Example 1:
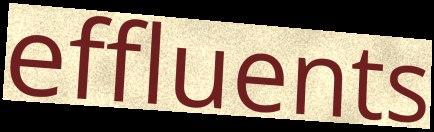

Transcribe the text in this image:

effluents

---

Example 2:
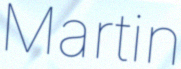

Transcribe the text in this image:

Martin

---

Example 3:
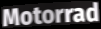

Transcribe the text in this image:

Motorrad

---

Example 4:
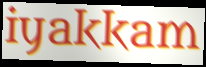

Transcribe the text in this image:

iyakkam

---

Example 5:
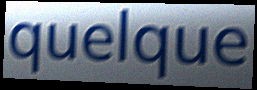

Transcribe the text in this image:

quelque